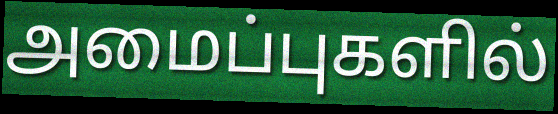
அமைப்புகளில்